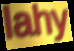
lahy